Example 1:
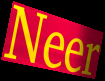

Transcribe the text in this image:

Neer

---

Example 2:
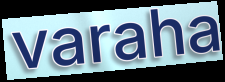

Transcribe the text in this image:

varaha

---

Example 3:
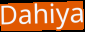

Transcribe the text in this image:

Dahiya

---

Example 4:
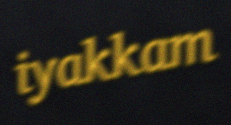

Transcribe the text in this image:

iyakkam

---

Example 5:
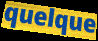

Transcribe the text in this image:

quelque